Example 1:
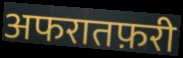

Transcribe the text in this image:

अफरातफ़री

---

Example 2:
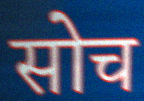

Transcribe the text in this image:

सोच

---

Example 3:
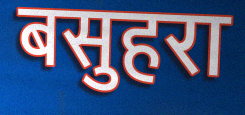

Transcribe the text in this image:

बसुहरा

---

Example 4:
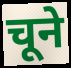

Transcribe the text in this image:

चूने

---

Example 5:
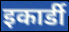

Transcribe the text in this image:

इकार्डी